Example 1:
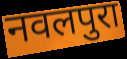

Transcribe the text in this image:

नवलपुरा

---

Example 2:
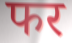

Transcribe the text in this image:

फर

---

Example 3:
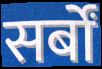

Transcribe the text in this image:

सर्बों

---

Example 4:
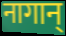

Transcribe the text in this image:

नागान्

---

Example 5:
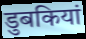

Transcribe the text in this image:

डुबकियां